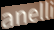
anelli